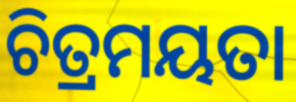
ଚିତ୍ରମୟତା